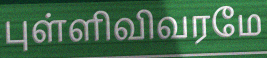
புள்ளிவிவரமே